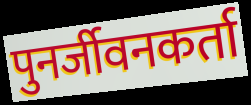
पुनर्जीवनकर्ता